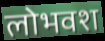
लोभवश